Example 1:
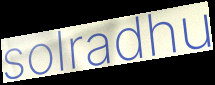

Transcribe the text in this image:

solradhu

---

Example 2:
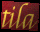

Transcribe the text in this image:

tila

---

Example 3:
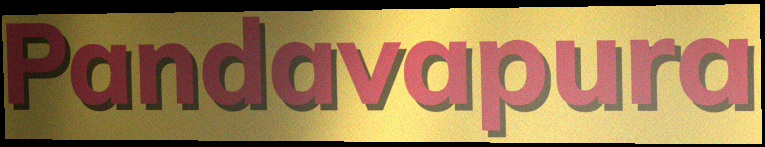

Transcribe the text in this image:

Pandavapura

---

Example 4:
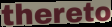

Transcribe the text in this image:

thereto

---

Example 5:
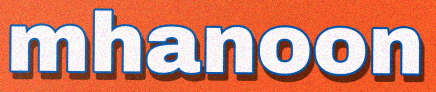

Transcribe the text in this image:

mhanoon